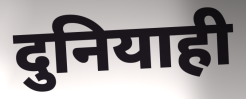
दुनियाही